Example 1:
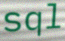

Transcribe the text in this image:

sql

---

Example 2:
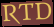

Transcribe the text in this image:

RTD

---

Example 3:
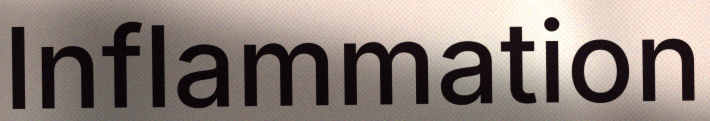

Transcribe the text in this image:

Inflammation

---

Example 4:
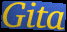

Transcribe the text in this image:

Gita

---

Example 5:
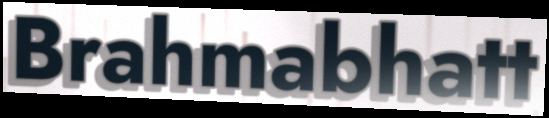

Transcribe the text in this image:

Brahmabhatt